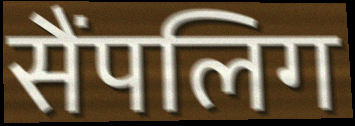
सैंपलिग